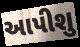
આપીશુ